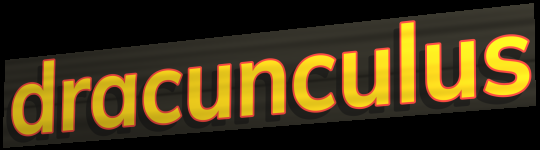
dracunculus